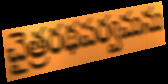
చైత్రరథపర్వమను